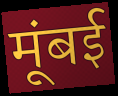
मूंबई